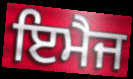
ਇਮੈਜ